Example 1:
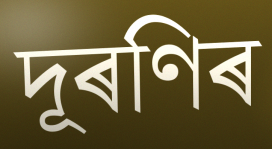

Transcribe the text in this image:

দূৰণিৰ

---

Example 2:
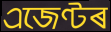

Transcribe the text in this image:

এজেণ্টৰ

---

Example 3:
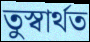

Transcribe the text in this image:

তুস্বাৰ্থত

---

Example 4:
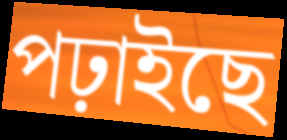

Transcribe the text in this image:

পঢ়াইছে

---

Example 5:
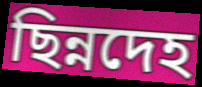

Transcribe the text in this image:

ছিন্নদেহ